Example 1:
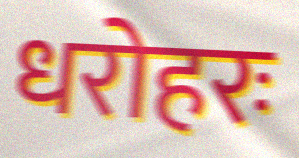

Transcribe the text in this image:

धरोहरः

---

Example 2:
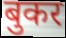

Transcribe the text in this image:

बुकर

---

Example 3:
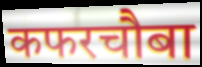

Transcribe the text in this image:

कफरचौबा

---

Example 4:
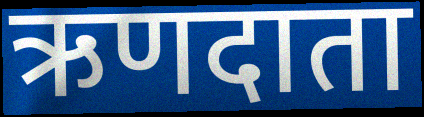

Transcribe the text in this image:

ऋणदाता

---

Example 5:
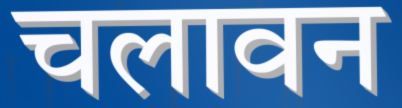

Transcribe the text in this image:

चलावन